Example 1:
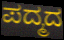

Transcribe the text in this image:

ಪದ್ಮದ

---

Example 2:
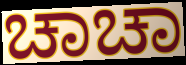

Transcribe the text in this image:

ಚಾಚಾ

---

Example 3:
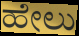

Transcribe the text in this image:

ಹೇಲು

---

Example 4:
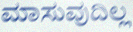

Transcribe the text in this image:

ಮಾಸುವುದಿಲ್ಲ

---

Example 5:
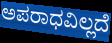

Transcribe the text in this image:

ಅಪರಾಧವಿಲ್ಲದೆ